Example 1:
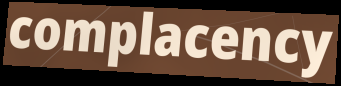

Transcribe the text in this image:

complacency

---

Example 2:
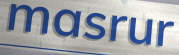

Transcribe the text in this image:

masrur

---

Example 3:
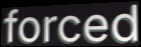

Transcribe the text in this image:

forced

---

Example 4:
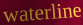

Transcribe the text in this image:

waterline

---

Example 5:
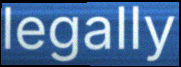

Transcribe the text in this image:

legally